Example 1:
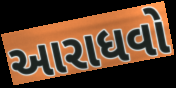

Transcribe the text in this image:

આરાધવો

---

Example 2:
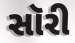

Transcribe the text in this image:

સૉરી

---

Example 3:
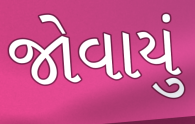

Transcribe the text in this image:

જોવાયું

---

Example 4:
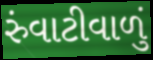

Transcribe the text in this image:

રુંવાટીવાળું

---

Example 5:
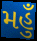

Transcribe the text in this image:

મહુઁ